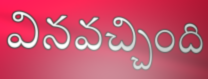
వినవచ్చింది